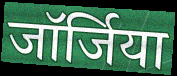
जॉर्जिया